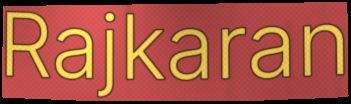
Rajkaran